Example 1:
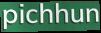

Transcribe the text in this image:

pichhun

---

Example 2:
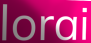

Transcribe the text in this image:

lorai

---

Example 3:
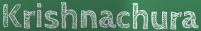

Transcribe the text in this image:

Krishnachura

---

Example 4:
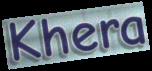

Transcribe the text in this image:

Khera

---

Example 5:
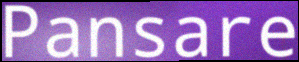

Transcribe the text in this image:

Pansare